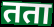
तता